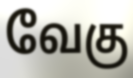
வேகு